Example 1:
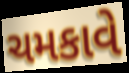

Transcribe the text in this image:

ચમકાવે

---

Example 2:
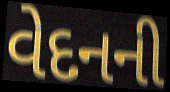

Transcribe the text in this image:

વેદનની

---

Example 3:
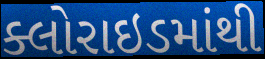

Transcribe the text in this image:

ક્લોરાઇડમાંથી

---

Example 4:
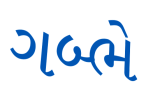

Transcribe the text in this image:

ગબ્ભે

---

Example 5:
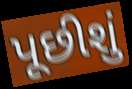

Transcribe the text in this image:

પૂછીશું